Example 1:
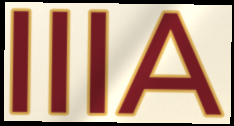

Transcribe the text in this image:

IIIA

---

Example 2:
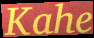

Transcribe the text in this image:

Kahe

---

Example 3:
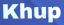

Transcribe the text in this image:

Khup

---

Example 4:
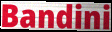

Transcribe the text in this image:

Bandini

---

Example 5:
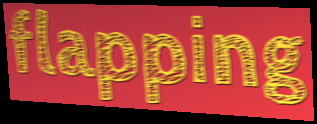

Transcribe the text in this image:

flapping